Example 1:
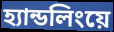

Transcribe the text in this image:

হ্যান্ডলিংয়ে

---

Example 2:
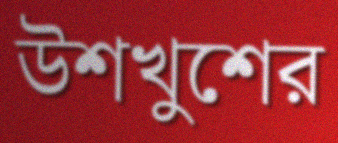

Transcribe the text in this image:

উশখুশের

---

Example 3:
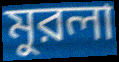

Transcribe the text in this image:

মুরলা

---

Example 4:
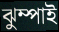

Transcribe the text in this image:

ঝুম্পাই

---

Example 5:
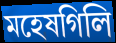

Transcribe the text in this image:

মহেষগিলি